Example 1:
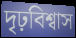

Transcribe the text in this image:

দৃঢ়বিশ্বাস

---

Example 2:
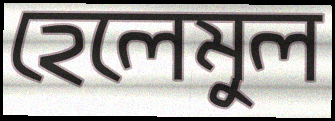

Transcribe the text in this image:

হেলেমুল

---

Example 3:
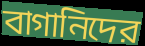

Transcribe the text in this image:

বাগানিদের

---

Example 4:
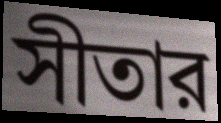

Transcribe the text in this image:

সীতার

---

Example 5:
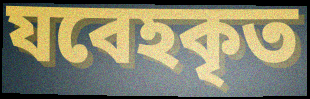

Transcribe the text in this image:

যবেহকৃত